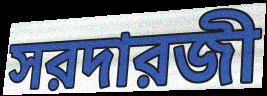
সরদারজী